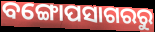
ବଙ୍ଗୋପସାଗରରୁ